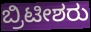
ಬ್ರಿಟೀಶರು